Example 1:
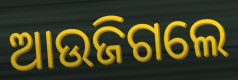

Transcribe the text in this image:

ଆଉଜିଗଲେ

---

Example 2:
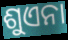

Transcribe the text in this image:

ଶୁଏନା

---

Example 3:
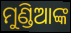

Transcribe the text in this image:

ମୁଣ୍ଡିଆଙ୍କ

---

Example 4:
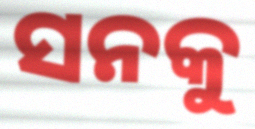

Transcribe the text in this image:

ସନକୁ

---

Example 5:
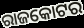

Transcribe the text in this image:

ରାଜକୋଟର